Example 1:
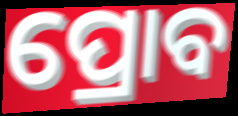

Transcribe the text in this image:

ପ୍ରୋବ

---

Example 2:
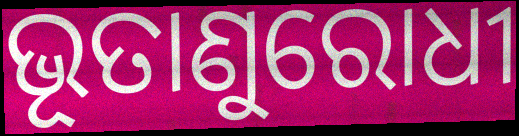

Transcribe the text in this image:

ଭୂତାଣୁରୋଧୀ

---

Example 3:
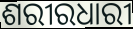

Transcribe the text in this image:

ଶରୀରଧାରୀ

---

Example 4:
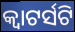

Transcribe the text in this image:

କ୍ୱାଟର୍ସଟି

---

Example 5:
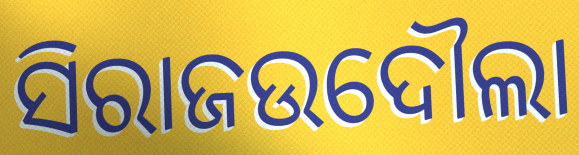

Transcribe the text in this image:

ସିରାଜଉଦୌଲା